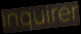
inquirer